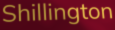
Shillington